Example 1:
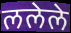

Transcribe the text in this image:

ललेले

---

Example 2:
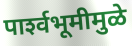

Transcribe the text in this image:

पार्श्‍वभूमीमुळे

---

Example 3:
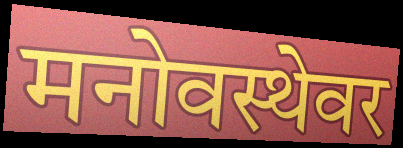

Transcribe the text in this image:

मनोवस्थेवर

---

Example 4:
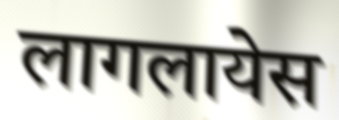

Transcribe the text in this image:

लागलायेस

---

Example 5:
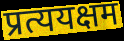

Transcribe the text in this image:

प्रत्ययक्षम